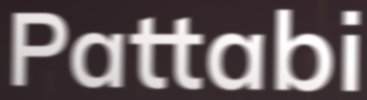
Pattabi